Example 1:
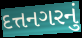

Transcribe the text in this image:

દત્તનગરનું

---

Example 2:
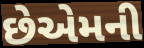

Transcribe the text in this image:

છેએમની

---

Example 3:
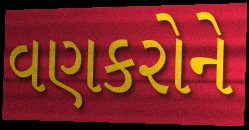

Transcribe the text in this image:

વણકરોને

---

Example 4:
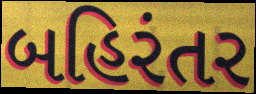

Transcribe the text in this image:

બહિરંતર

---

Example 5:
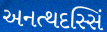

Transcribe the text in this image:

અનત્થદસ્સિં